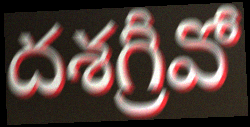
దశగ్రీవో